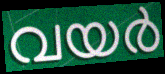
വയർ